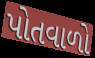
પોતવાળો